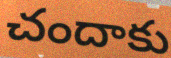
చందాకు